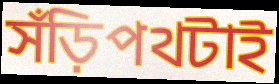
সঁড়িপথটাই